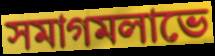
সমাগমলাভে